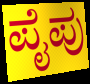
ಪೈಪು